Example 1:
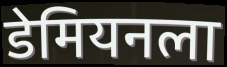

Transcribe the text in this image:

डेमियनला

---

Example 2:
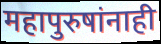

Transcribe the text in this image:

महापुरुषांनाही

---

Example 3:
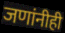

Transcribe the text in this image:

जणांनीही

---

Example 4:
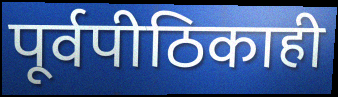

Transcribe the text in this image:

पूर्वपीठिकाही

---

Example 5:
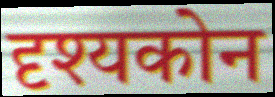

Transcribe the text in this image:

दृश्‍यकोन